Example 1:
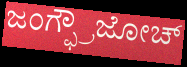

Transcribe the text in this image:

ಜಂಗ್ಫ್ರೌಜೋಚ್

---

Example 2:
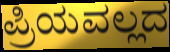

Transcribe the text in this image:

ಪ್ರಿಯವಲ್ಲದ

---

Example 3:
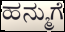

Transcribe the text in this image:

ಹನ್ಮುಗೆ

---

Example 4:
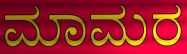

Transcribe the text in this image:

ಮಾಮರ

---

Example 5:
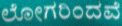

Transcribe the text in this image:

ಲೋಗರಿಂದವೆ